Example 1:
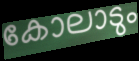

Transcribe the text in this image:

കോലാടും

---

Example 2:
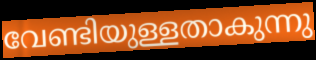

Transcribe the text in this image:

വേണ്ടിയുള്ളതാകുന്നു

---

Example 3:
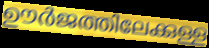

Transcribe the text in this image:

ഊർജത്തിലേക്കുള്ള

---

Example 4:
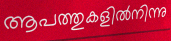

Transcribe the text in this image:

ആപത്തുകളിൽനിന്നു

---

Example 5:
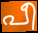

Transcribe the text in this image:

പീ